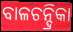
ବାଳଚନ୍ଦ୍ରିକା